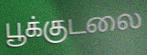
பூக்குடலை